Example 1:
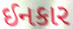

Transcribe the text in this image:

ઈનકાર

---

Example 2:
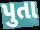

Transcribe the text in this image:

પુતા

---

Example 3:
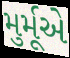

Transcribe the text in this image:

મુર્મૂએ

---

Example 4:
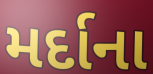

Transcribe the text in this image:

મર્દાના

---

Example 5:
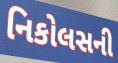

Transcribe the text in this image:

નિકોલસની